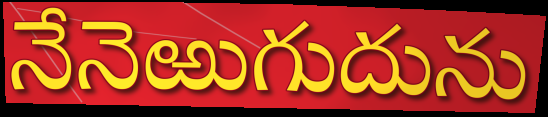
నేనెఱుగుదును